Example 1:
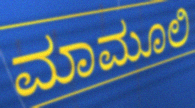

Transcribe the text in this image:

ಮಾಮೂಲಿ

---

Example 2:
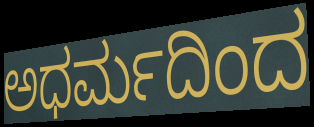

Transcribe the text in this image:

ಅಧರ್ಮದಿಂದ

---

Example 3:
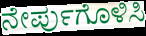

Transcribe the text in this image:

ನೇರ್ಪುಗೊಳಿಸಿ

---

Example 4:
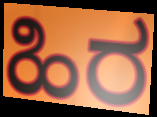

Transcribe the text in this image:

ಹಿರ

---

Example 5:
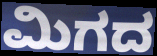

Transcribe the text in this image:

ಮಿಗದ